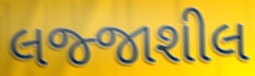
લજ્જાશીલ